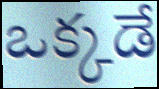
ఒక్కడే